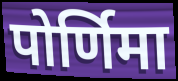
पोर्णिमा